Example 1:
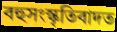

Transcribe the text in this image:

বহুসংস্কৃতিবাদত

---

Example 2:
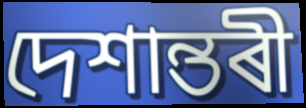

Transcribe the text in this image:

দেশান্তৰী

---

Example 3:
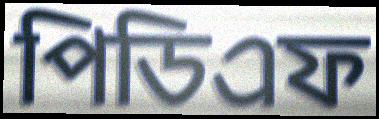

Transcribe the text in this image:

পিডিএফ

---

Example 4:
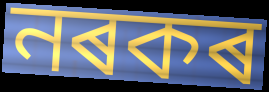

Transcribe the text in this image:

নৰকৰ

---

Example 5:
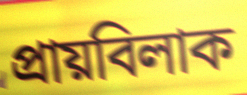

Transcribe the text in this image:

প্ৰায়বিলাক